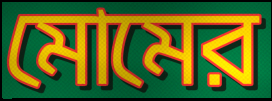
মোমের